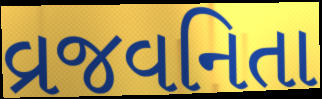
વ્રજવનિતા